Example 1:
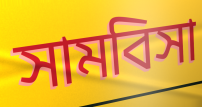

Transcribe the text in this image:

সামবিসা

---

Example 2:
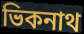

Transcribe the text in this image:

ভিকনাথ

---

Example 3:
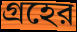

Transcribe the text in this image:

গ্রহের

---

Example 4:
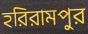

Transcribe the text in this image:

হরিরামপুর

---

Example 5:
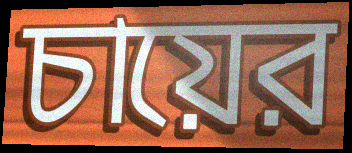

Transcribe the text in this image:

চায়ের